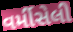
વર્મીસેલી